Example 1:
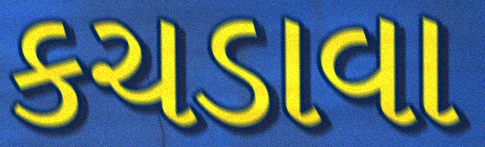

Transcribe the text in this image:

કચડાવા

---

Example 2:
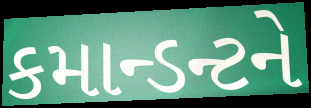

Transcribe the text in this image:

કમાન્ડન્ટને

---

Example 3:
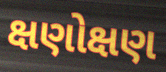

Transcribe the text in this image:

ક્ષણોક્ષણ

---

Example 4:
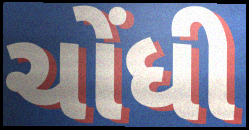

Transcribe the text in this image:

ચોંધી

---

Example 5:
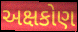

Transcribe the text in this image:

અક્ષકોણ